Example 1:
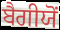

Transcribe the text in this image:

ਬੈਗੀਯੋਂ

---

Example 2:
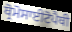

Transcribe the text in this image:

ਥ੍ਰੋਮੋਸਾਈਟੋਪੈਥੀ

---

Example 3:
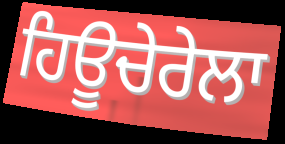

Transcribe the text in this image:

ਹਿਊਚੇਰੇਲਾ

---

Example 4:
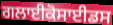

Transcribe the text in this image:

ਗਲਾਈਕੋਸਾਈਡਸ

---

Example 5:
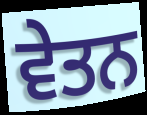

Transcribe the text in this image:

ਵੇਤਨ